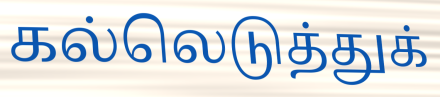
கல்லெடுத்துக்